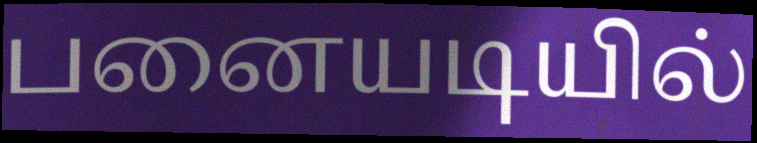
பனையடியில்